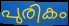
പുരികം